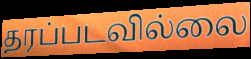
தரப்படவில்லை